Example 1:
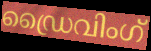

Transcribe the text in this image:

ഡ്രൈവിംഗ്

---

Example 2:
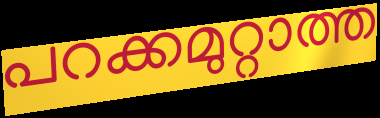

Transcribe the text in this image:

പറക്കമുറ്റാത്ത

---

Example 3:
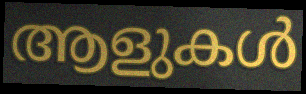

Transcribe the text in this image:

ആളുകൾ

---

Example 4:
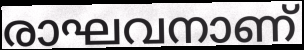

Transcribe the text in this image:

രാഘവനാണ്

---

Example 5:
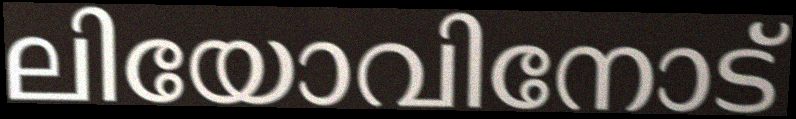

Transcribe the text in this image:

ലിയോവിനോട്